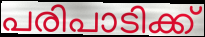
പരിപാടിക്ക്